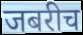
जबरीच